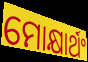
ମୋକ୍ଷାର୍ଥଂ